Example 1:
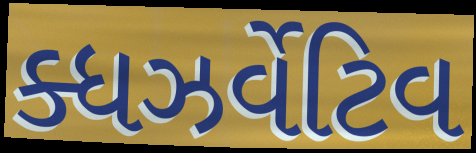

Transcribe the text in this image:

ક્ધઝર્વેટિવ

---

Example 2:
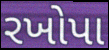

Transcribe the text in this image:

રખોપા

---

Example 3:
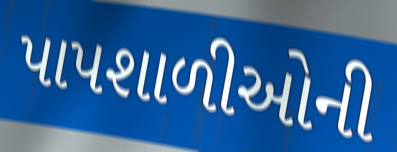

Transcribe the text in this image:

પાપશાળીઓની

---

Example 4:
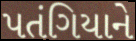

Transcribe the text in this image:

પતંગિયાને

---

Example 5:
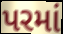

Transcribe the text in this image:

પરમાં